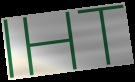
IHT